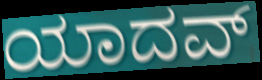
ಯಾದವ್